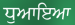
ਧੁਆਇਆ